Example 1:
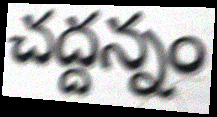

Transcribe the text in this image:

చద్దన్నం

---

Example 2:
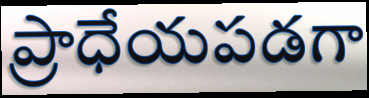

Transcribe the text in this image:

ప్రాధేయపడగా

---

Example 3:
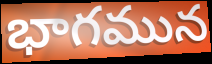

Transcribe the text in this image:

భాగమున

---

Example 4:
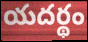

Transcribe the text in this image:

యదర్థం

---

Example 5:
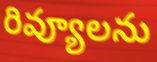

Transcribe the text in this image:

రివ్యూలను